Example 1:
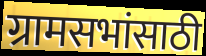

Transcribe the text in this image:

ग्रामसभांसाठी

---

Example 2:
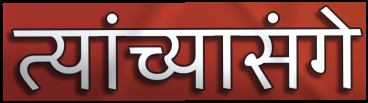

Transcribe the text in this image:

त्यांच्यासंगे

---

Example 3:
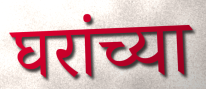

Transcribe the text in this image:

घरांच्या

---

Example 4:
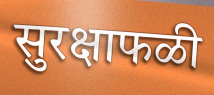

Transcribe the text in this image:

सुरक्षाफळी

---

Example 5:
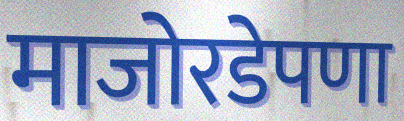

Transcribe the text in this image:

माजोरडेपणा